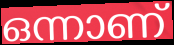
ഒന്നാണ്